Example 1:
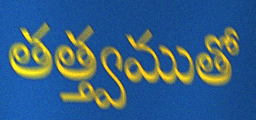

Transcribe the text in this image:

తత్త్వముతో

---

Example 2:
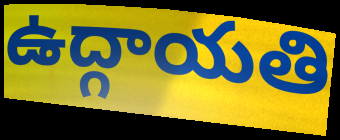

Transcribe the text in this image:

ఉద్గాయతి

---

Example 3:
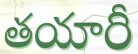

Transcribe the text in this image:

తయారీ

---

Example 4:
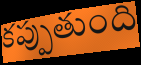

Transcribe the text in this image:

కప్పుతుంది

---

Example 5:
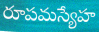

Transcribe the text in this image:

రూపమస్యేహ